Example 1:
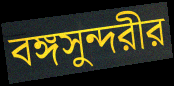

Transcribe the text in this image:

বঙ্গসুন্দরীর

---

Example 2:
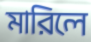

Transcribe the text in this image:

মারিলে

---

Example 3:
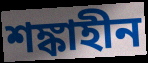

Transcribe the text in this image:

শঙ্কাহীন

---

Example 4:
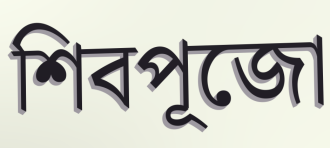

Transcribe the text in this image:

শিবপূজো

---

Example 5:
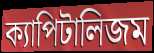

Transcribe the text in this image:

ক্যাপিটালিজম